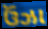
ઉંઝા